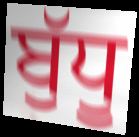
ਬੁੱਧੂ